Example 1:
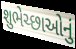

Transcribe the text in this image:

શુભેચ્છાઓનું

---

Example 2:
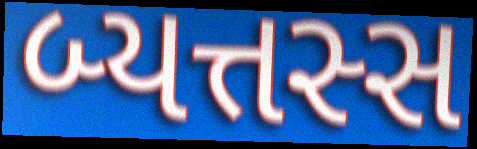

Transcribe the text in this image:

બ્યત્તસ્સ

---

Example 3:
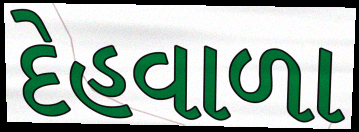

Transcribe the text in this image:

દેહવાળા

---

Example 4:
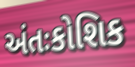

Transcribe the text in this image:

અંતઃકોશિક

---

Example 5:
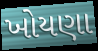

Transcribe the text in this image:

ખોયણા